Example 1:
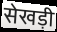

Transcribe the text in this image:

सेखड़ी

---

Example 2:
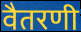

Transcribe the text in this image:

वैतरणी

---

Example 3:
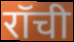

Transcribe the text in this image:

रॉची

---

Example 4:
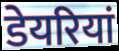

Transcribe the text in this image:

डेयरियां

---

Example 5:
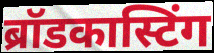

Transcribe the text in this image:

ब्रॉडकास्टिंग